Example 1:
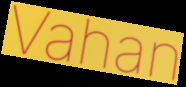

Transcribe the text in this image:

Vahan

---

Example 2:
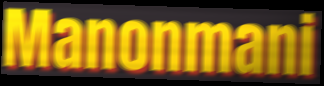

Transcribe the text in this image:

Manonmani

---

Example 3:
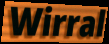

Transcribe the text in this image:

Wirral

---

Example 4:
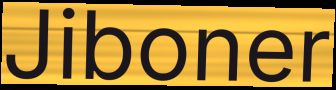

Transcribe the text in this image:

Jiboner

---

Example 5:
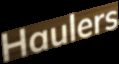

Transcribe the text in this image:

Haulers